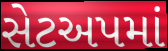
સેટઅપમાં